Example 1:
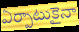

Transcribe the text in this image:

ఏర్పాటుకైనా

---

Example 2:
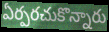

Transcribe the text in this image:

ఏర్పరచుకొన్నారు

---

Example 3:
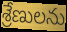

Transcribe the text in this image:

శ్రేణులను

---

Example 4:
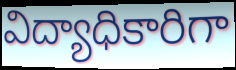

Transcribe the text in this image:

విద్యాధికారిగా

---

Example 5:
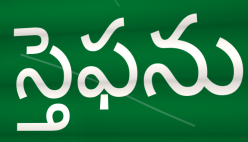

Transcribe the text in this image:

స్తెఫను